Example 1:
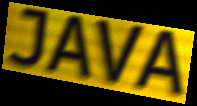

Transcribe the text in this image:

JAVA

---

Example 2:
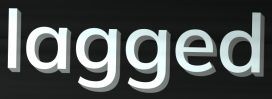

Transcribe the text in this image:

lagged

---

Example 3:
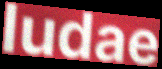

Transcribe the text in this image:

Iudae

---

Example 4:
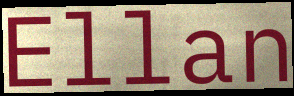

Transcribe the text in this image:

Ellan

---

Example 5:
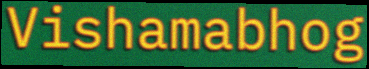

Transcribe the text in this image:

Vishamabhog